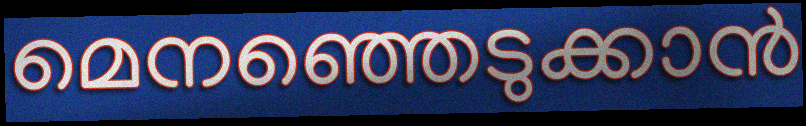
മെനഞ്ഞെടുക്കാൻ